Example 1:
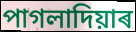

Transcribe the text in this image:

পাগলাদিয়াৰ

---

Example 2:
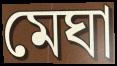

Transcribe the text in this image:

মেঘা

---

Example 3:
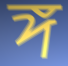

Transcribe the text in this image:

ঙ্গ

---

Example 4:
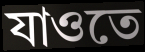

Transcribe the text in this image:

যাওতে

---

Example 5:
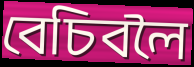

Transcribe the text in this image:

বেচিবলৈ